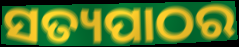
ସତ୍ୟପାଠର